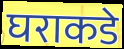
घराकडे